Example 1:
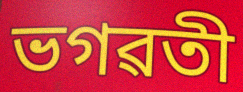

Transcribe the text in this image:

ভগৱতী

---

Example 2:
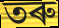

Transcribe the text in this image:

তৰু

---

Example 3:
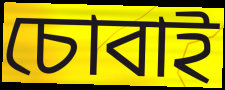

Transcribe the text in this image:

চোবাই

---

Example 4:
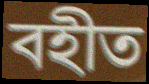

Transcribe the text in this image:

বহীত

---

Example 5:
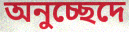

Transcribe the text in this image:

অনুচ্ছেদে